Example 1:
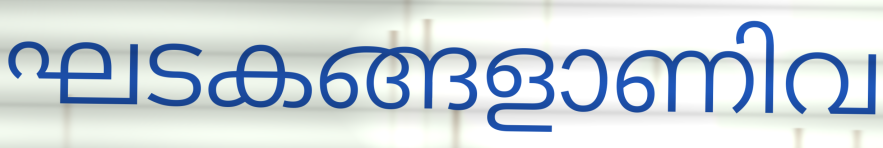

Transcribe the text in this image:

ഘടകങ്ങളാണിവ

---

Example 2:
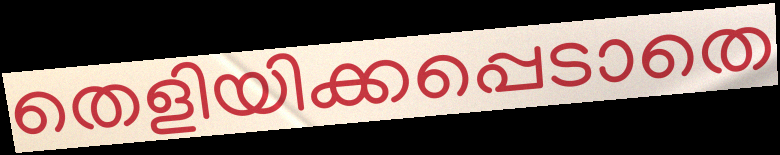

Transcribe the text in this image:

തെളിയിക്കപ്പെടാതെ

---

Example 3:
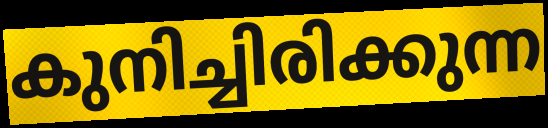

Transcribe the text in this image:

കുനിച്ചിരിക്കുന്ന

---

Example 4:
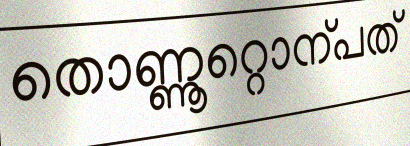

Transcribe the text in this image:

തൊണ്ണൂറ്റൊന്പത്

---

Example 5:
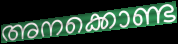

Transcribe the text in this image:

അനക്കൊണ്ട